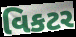
વિકટર